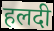
हलदी